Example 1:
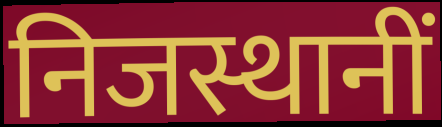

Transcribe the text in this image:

निजस्थानीं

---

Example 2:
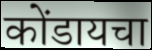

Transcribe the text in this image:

कोंडायचा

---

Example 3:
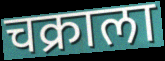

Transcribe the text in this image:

चक्राला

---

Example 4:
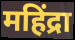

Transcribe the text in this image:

महिंद्रा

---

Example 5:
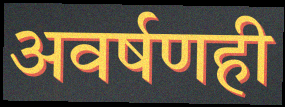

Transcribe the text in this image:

अवर्षणही